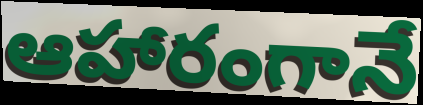
ఆహారంగానే